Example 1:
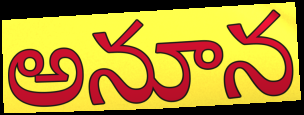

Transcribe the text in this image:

అనూన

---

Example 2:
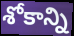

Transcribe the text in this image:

శోకాన్ని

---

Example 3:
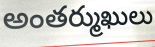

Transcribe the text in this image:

అంతర్ముఖులు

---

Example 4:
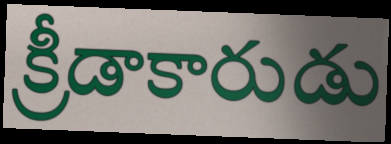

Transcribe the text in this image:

క్రీడాకారుడు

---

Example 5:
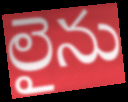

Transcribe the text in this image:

లైను